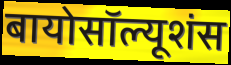
बायोसॉल्यूशंस